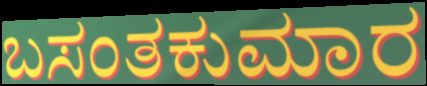
ಬಸಂತಕುಮಾರ